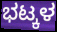
ಭಟ್ಕಳ